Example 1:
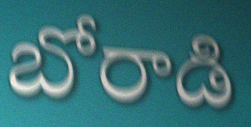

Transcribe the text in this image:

బోరాడి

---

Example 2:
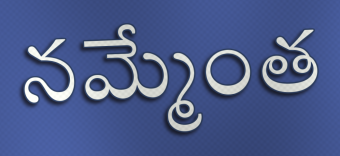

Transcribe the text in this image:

నమ్మేంత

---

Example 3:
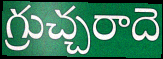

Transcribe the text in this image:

గ్రుచ్చరాదె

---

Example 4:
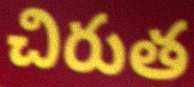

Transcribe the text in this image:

చిరుత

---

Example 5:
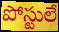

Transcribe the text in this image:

పోస్టులే